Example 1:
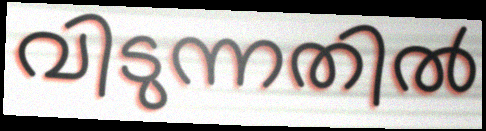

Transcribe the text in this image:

വിടുന്നതിൽ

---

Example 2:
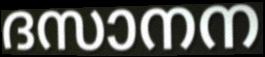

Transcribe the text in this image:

ദസാനന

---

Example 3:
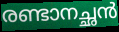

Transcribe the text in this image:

രണ്ടാനച്ഛൻ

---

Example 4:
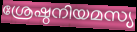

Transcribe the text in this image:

ശ്രേഷ്ഠനിയമസ്യ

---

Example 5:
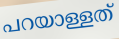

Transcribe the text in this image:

പറയാള്ളത്